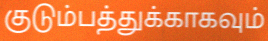
குடும்பத்துக்காகவும்